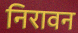
निरावन